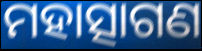
ମହାତ୍ସାଗଣ